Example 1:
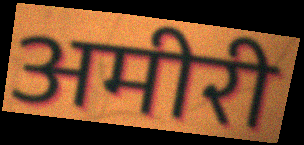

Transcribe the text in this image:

अमीरी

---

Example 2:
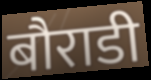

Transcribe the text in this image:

बौराडी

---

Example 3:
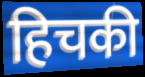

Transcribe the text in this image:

हिचकी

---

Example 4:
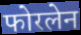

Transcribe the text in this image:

फोरलेन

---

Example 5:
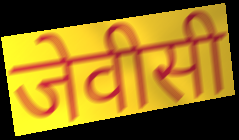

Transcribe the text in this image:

जेवीसी